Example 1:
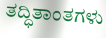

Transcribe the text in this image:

ತದ್ಧಿತಾಂತಗಳು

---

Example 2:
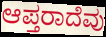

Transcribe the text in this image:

ಆಪ್ತರಾದೆವು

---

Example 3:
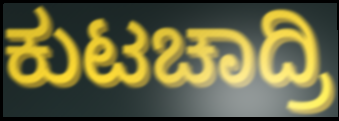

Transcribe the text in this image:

ಕುಟಚಾದ್ರಿ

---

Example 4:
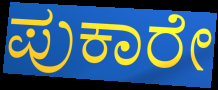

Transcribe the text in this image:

ಪುಕಾರೇ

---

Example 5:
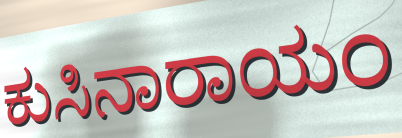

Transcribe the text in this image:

ಕುಸಿನಾರಾಯಂ